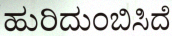
ಹುರಿದುಂಬಿಸಿದೆ